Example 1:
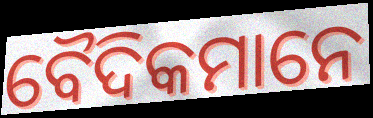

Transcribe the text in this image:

ବୈଦିକମାନେ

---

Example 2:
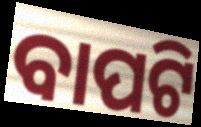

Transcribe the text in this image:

ବାପଟି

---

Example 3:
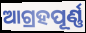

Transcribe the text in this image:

ଆଗ୍ରହପୂର୍ଣ୍ଣ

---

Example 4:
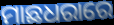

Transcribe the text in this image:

ମାଛଧରାରେ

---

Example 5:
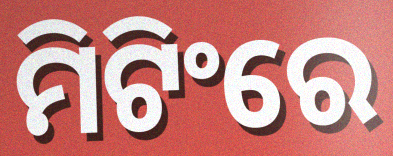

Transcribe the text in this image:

ମିଟିଂରେ